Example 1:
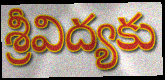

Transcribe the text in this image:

శ్రీవిద్యకు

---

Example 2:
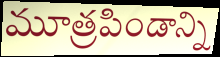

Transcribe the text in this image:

మూత్రపిండాన్ని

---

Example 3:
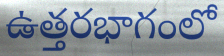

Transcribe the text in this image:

ఉత్తరభాగంలో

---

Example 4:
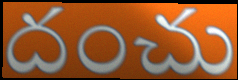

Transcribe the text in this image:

దంచు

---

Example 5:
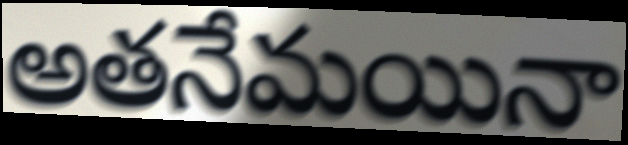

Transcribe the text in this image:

అతనేమయినా